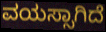
ವಯಸ್ಸಾಗಿದೆ